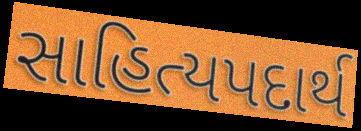
સાહિત્યપદાર્થ